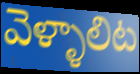
వెళ్ళాలిట